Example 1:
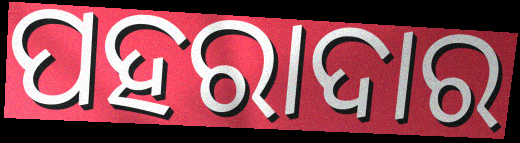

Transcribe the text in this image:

ପହରାଦାର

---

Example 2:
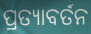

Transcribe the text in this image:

ପ୍ରତ୍ୟାବର୍ତନ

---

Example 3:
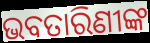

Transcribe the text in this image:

ଭବତାରିଣୀଙ୍କ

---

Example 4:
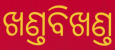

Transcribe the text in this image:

ଖଣ୍ତବିଖଣ୍ତ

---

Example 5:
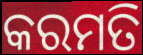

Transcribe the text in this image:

କରମତି